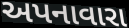
અપનાવારા